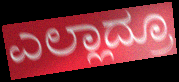
ಎಲ್ಲಾದ್ರೂ